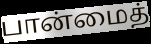
பான்மைத்